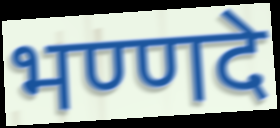
भण्णदे